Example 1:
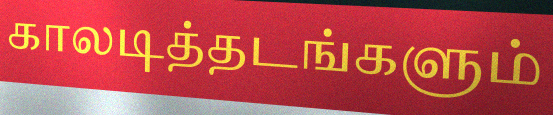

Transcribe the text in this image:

காலடித்தடங்களும்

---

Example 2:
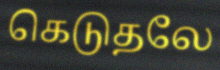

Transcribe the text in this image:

கெடுதலே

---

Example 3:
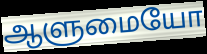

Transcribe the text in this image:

ஆளுமையோ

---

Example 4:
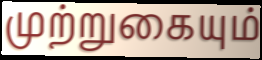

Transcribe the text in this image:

முற்றுகையும்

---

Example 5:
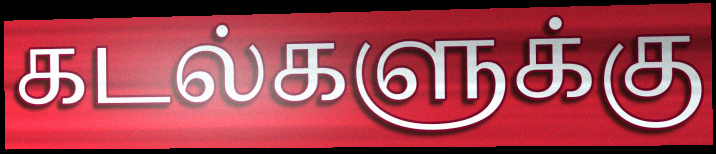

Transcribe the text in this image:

கடல்களுக்கு